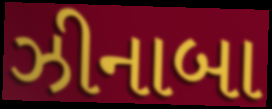
ઝીનાબા